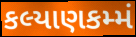
કલ્યાણકમ્મં